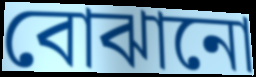
বোঝানো